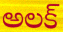
అలక్